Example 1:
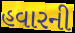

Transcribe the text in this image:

હવારની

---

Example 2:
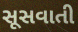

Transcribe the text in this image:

સૂસવાતી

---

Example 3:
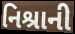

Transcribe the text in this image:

નિશ્રાની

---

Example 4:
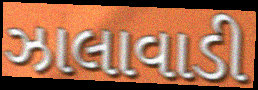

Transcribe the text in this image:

ઝાલાવાડી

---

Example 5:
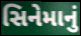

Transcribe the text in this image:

સિનેમાનું